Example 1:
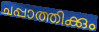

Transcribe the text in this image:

ചപ്പാത്തിക്കും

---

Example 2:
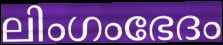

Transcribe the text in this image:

ലിംഗംഭേദം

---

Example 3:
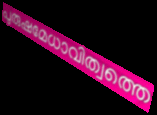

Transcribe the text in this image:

പുരുഷമേധാവിത്വത്തെ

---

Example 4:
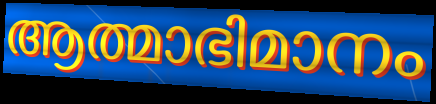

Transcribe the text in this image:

ആത്മാഭിമാനം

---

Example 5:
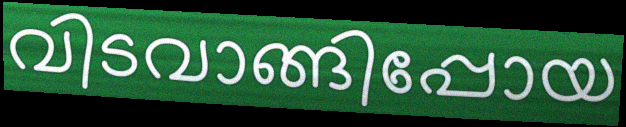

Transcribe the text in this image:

വിടവാങ്ങിപ്പോയ